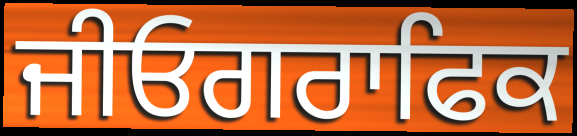
ਜੀਓਗਰਾਫਿਕ